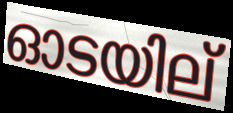
ഓടയില്